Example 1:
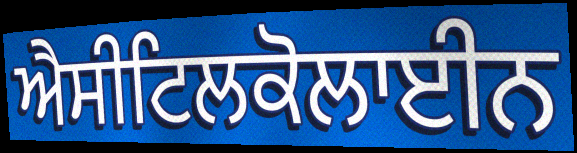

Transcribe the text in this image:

ਐਸੀਟਿਲਕੋਲਾਈਨ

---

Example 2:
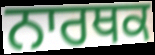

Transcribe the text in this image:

ਨਾਰਥਕ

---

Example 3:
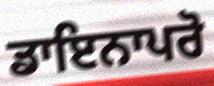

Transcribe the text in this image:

ਡਾਇਨਾਪਰੋ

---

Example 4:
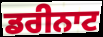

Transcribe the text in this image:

ਡਰੀਨਾਟ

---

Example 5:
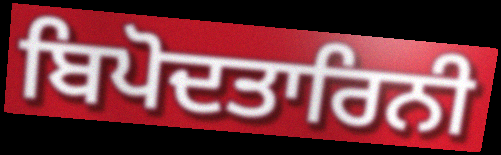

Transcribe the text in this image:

ਬਿਪੋਦਤਾਰਿਨੀ